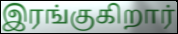
இரங்குகிறார்